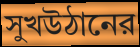
সুখউঠানের